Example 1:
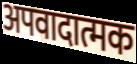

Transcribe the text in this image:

अपवादात्मक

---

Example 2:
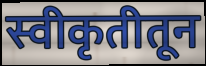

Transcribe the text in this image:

स्वीकृतीतून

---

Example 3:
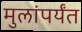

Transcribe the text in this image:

मुलांपर्यंत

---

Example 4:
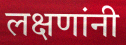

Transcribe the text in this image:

लक्षणांनी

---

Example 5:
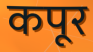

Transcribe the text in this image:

कपूर